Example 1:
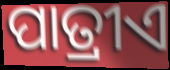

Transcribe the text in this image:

ପାତ୍ରୀଏ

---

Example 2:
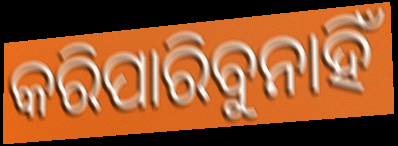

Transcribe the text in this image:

କରିପାରିବୁନାହିଁ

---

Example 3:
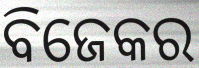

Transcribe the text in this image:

ବିଜେକର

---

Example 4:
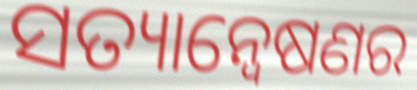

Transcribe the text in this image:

ସତ୍ୟାନ୍ୱେଷଣର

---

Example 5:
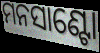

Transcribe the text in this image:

ମନସାଣ୍ଟୋ